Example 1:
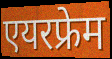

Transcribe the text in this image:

एयरफ्रेम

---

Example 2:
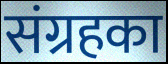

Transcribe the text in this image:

संग्रहका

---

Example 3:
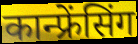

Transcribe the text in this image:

कान्फ्रेंसिंग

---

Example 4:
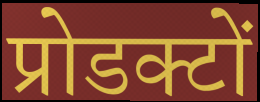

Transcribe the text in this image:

प्रोडक्टों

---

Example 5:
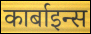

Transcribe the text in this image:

कार्बाइन्स